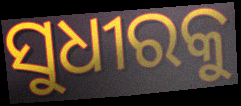
ସୁଧୀରକୁ